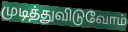
முடித்துவிடுவோம்